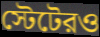
স্টেটেরও